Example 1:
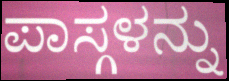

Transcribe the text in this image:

ಪಾಸ್ಗಳನ್ನು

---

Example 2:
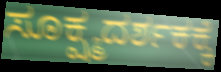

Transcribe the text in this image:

ಸೂಕ್ಷ್ಮದರ್ಶಕಕ್ಕೆ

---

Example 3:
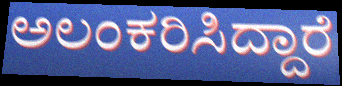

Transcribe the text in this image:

ಅಲಂಕರಿಸಿದ್ದಾರೆ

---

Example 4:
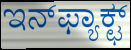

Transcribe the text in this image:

ಇನ್‌ಫ್ಯಾಕ್ಟ್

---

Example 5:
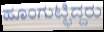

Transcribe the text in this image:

ಹೂಂಗುಟ್ಟಿದ್ದರು